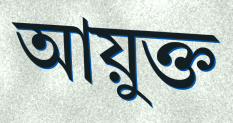
আয়ুক্ত